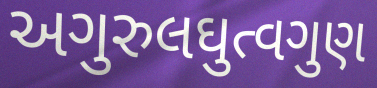
અગુરુલઘુત્વગુણ